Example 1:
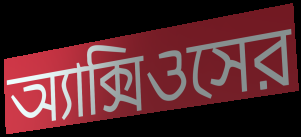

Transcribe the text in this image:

অ্যাক্সিওসের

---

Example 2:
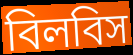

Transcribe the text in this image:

বিলবিস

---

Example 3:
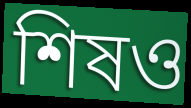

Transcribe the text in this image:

শিষও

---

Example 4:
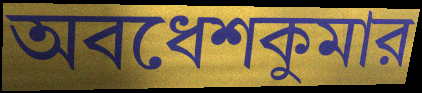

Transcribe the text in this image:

অবধেশকুমার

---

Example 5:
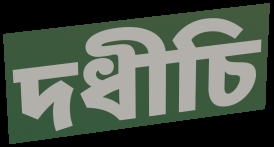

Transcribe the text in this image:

দধীচি